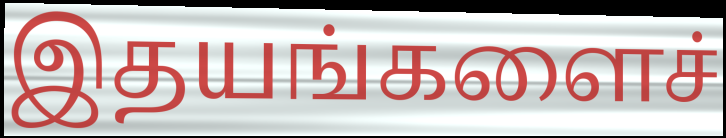
இதயங்களைச்